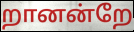
றானன்றே